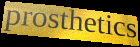
prosthetics